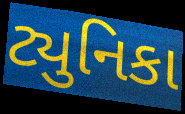
ટ્યુનિકા